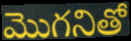
మొగనితో